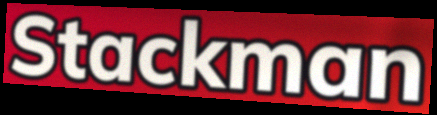
Stackman